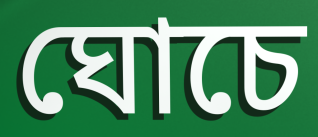
ঘোচে